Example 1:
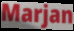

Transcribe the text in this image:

Marjan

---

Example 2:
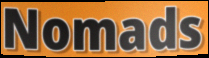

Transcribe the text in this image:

Nomads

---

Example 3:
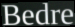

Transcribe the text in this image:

Bedre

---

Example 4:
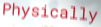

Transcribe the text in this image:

Physically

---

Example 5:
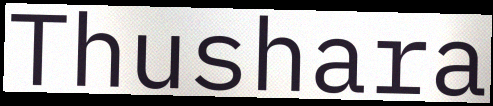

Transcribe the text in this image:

Thushara